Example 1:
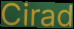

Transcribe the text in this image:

Cirad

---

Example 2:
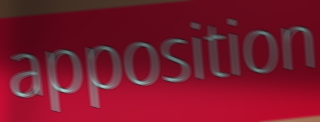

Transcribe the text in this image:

apposition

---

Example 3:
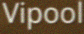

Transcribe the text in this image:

Vipool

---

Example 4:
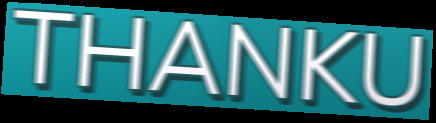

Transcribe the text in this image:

THANKU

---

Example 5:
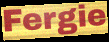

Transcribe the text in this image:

Fergie